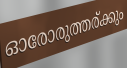
ഓരോരുത്തര്ക്കും